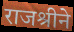
राजश्रीने